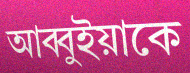
আব্বুইয়াকে